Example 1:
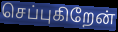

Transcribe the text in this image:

செப்புகிறேன்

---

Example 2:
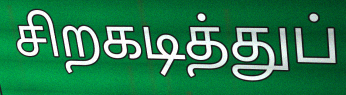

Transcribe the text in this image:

சிறகடித்துப்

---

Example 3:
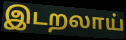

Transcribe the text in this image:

இடறலாய்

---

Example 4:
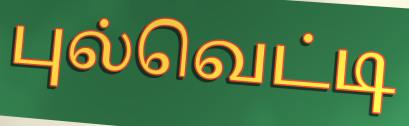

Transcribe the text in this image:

புல்வெட்டி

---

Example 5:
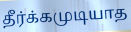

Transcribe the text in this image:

தீர்க்கமுடியாத